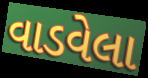
વાડવેલા